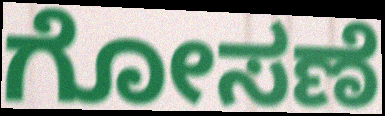
ಗೋಸಣೆ